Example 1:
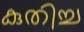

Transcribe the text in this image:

കുതിച്ച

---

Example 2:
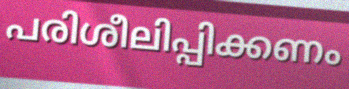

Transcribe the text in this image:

പരിശീലിപ്പിക്കണം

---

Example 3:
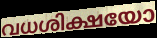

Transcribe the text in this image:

വധശിക്ഷയോ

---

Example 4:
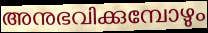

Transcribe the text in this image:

അനുഭവിക്കുമ്പോഴും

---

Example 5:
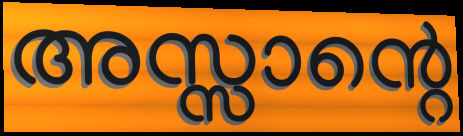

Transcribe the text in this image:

അസ്സാന്റെ